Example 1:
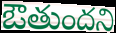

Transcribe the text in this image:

ఔతుందని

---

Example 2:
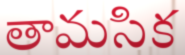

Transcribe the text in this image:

తామసిక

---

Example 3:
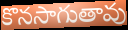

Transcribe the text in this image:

కొనసాగుతావు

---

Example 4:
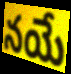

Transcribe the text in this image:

నయే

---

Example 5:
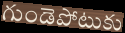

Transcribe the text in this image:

గుండెపోటుకు